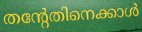
തന്റേതിനെക്കാൾ